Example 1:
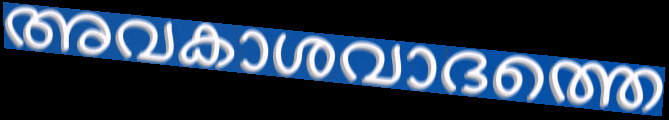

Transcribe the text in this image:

അവകാശവാദത്തെ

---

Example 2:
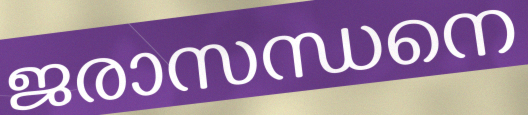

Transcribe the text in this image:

ജരാസന്ധനെ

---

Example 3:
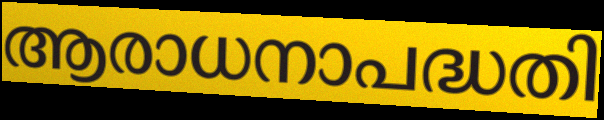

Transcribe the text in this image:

ആരാധനാപദ്ധതി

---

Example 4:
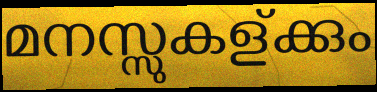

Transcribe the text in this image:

മനസ്സുകള്ക്കും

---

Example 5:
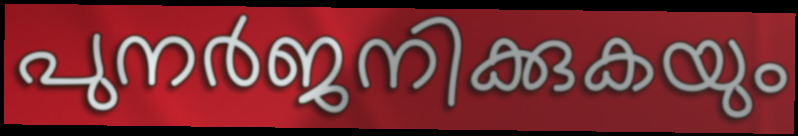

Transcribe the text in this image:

പുനർജനിക്കുകയും